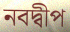
নবদ্বীপ